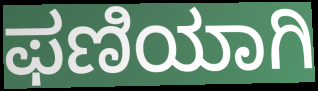
ಫಣಿಯಾಗಿ